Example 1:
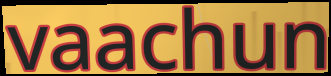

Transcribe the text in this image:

vaachun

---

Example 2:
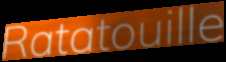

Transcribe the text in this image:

Ratatouille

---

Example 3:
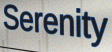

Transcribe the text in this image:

Serenity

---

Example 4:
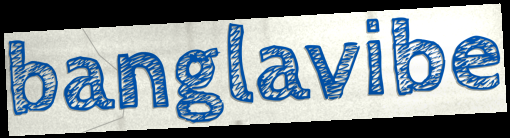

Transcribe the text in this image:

banglavibe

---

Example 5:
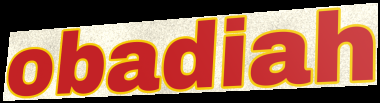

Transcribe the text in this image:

obadiah